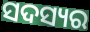
ସଦସ୍ୟର